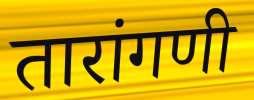
तारांगणी